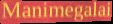
Manimegalai